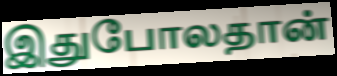
இதுபோலதான்